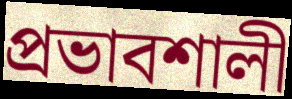
প্ৰভাবশালী